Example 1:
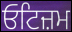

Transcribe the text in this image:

ਓਟਿਜ਼ਮ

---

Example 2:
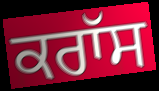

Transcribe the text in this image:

ਕਰਾੱਸ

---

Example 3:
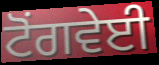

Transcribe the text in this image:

ਟੋਂਗਵੇਈ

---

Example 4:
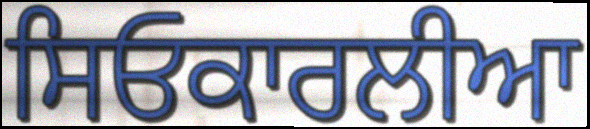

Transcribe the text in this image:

ਸਿਓਕਾਰਲੀਆ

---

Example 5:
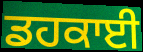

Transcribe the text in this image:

ਡਹਕਾਈ